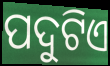
ପଦୁଟିଏ